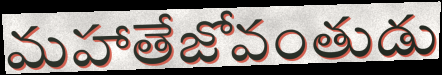
మహాతేజోవంతుడు